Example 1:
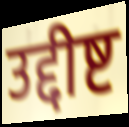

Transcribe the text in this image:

उद्दीष्ट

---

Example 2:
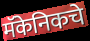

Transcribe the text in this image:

मॅकेनिकचे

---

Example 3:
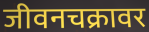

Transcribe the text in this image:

जीवनचक्रावर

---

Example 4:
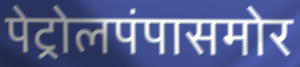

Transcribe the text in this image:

पेट्रोलपंपासमोर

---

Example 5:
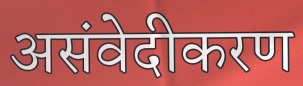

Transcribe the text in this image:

असंवेदीकरण